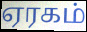
ஏரகம்